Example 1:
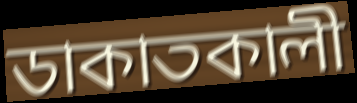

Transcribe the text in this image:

ডাকাতকালী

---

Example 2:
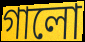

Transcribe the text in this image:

গালো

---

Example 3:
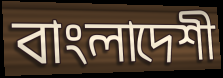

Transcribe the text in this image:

বাংলাদেশী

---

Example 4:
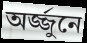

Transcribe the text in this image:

অর্জ্জুনে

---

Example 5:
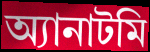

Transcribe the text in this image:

অ্যানাটমি